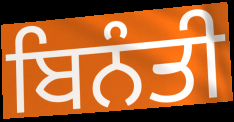
ਬਿਨੰਤੀ